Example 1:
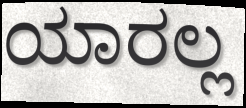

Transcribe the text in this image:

ಯಾರಲ್ಲ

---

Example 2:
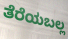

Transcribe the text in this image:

ತೆರೆಯಬಲ್ಲ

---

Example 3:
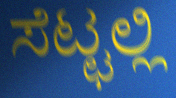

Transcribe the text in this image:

ಸೆಟ್ಟಲ್ಲಿ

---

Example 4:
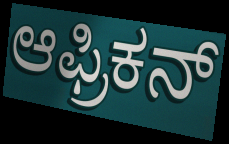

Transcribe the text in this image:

ಆಫ್ರಿಕನ್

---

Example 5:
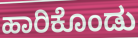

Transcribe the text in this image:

ಹಾರಿಕೊಂಡು